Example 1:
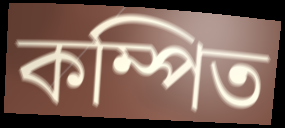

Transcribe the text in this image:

কম্পিত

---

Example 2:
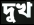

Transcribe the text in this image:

দুখ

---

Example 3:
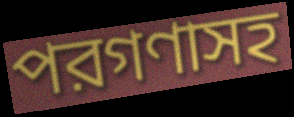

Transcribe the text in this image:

পরগণাসহ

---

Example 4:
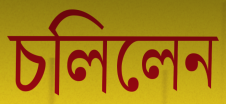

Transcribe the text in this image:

চলিলেন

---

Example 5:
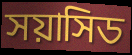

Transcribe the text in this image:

সয়াসিড